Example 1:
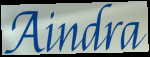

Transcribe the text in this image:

Aindra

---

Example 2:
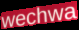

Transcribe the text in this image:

wechwa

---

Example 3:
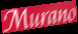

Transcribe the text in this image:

Murano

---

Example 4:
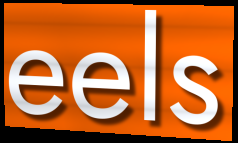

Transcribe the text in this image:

eels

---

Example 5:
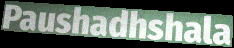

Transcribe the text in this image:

Paushadhshala